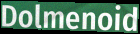
Dolmenoid